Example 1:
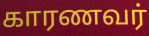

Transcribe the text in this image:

காரணவர்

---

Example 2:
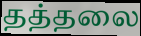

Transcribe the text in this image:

தத்தலை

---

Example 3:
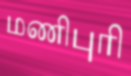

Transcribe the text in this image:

மணிபுரி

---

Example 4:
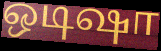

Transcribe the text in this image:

ஒடிஷா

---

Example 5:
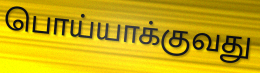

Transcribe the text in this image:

பொய்யாக்குவது